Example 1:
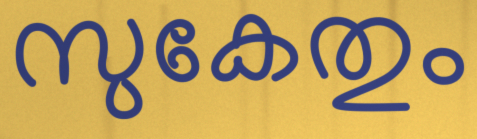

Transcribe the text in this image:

സുകേതും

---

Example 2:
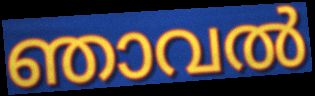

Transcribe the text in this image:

ഞാവൽ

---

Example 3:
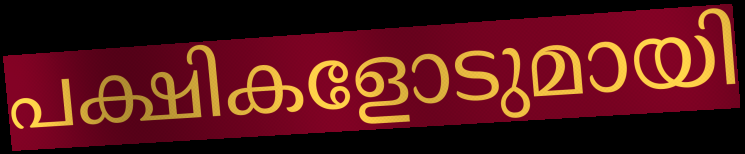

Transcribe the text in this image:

പക്ഷികളോടുമായി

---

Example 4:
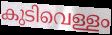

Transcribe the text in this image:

കുടിവെള്ളം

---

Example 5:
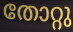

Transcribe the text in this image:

തോറ്റു